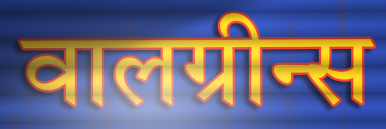
वालग्रीन्स